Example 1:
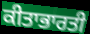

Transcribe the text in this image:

ਕੀਤਾਭਾਰਤੀ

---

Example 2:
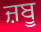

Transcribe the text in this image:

ਜ਼ਬੂ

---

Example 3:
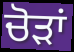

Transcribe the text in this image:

ਚੋੜਾਂ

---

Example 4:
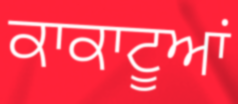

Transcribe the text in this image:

ਕਾਕਾਟੂਆਂ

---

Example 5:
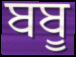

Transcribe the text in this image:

ਬਬੂ